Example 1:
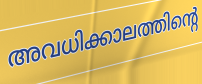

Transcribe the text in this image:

അവധിക്കാലത്തിന്റെ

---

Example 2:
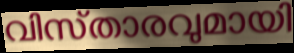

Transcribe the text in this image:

വിസ്‌താരവുമായി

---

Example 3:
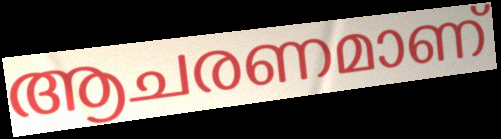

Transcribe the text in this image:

ആചരണമാണ്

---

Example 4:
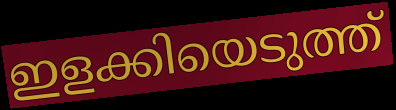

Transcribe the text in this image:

ഇളക്കിയെടുത്ത്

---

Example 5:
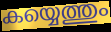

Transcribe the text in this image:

കയ്യെത്തും